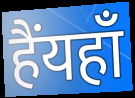
हैंयहाँ